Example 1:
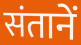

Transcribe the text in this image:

संतानें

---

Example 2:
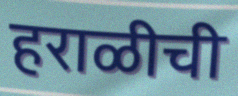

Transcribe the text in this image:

हराळीची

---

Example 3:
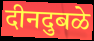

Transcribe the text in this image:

दीनदुबळे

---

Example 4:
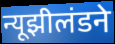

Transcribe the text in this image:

न्यूझीलंडने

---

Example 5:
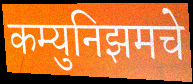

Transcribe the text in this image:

कम्युनिझमचे